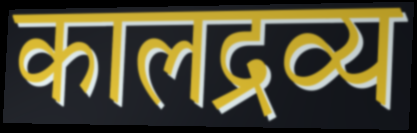
कालद्रव्य